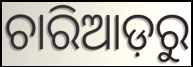
ଚାରିଆଡ଼ରୁ